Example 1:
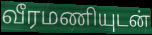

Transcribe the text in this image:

வீரமணியுடன்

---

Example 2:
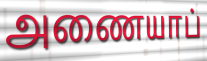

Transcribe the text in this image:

அணையாப்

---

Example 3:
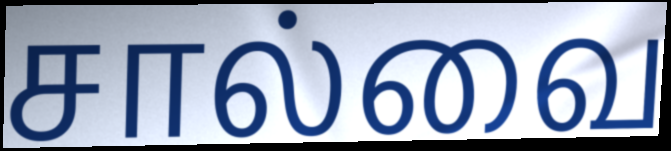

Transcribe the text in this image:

சால்வை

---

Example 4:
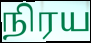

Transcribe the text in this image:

நிரய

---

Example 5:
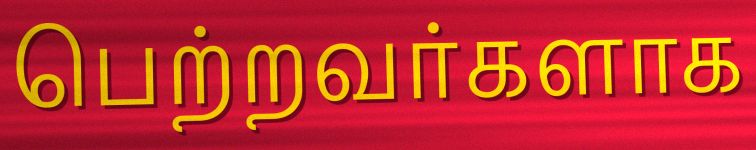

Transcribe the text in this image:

பெற்றவர்களாக